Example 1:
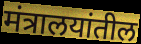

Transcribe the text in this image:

मंत्रालयांतील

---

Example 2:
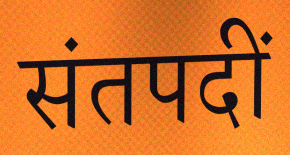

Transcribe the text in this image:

संतपदीं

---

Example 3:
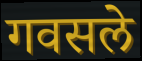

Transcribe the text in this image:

गवसले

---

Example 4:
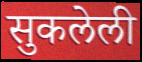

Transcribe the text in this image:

सुकलेली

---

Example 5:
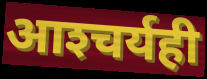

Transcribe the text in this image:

आश्‍चर्यही